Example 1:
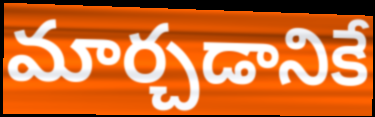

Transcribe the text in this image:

మార్చడానికే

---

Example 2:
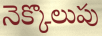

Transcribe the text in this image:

నెక్కొలుపు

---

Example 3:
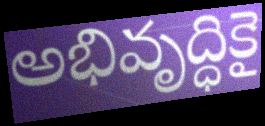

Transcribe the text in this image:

అభివృద్ధికై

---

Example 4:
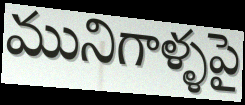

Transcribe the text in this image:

మునిగాళ్ళపై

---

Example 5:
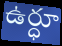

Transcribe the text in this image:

ఉర్ధూ